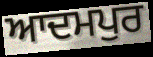
ਆਦਮਪੁਰ